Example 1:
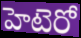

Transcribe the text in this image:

హెటెరో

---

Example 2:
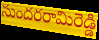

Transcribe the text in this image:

సుందరరామిరెడ్డి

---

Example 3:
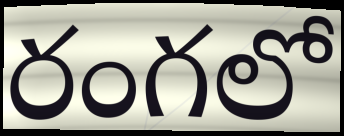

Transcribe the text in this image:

రంగలో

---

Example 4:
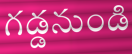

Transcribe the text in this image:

గడ్డనుండి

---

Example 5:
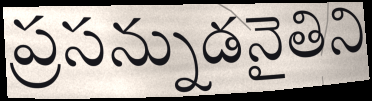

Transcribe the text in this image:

ప్రసన్నుడనైతిని